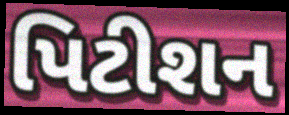
પિટીશન